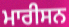
ਮਾਰੀਸਨ